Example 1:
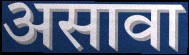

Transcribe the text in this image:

असावा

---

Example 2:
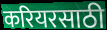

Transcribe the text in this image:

करियरसाठी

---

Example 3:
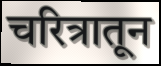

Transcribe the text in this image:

चरित्रातून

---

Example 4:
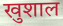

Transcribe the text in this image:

खुशाल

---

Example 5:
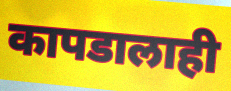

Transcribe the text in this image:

कापडालाही